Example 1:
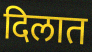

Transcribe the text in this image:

दिलात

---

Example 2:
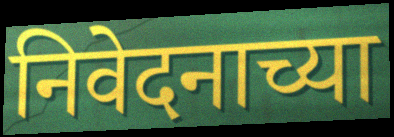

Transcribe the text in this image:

निवेदनाच्या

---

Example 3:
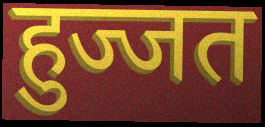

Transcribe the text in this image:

हुज्जत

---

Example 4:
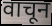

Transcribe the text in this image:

वाचून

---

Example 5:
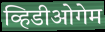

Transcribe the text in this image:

व्हिडीओगेम